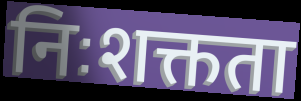
निःशक्तता